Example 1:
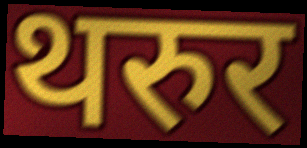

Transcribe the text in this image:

थरुर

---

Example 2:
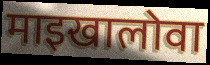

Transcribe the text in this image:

माइखालोवा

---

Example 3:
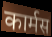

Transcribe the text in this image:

कार्मस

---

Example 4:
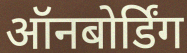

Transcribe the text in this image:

ऑनबोर्डिंग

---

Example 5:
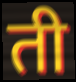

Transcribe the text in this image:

ती